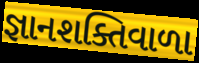
જ્ઞાનશક્તિવાળા